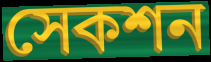
সেকশন